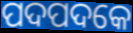
ପଦପଦକେ